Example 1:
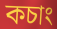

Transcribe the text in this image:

কচাং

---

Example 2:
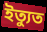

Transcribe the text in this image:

ইত্যুত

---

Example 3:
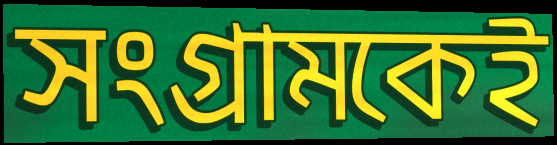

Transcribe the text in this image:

সংগ্রামকেই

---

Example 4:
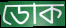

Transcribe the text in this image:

ডোক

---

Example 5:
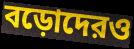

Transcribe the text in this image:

বড়োদেরও